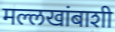
मल्लखांबाशी